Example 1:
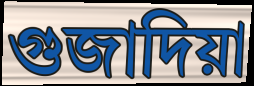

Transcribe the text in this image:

গুজাদিয়া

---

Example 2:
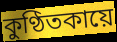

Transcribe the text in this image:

কুণ্ঠিতকায়ে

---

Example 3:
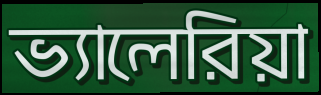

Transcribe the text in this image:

ভ্যালেরিয়া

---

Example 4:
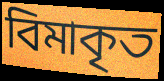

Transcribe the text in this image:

বিমাকৃত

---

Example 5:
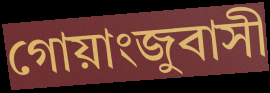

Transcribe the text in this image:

গোয়াংজুবাসী